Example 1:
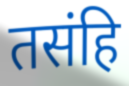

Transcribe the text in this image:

तसंहि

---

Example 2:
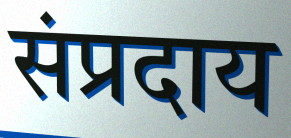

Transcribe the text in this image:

संप्रदाय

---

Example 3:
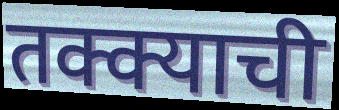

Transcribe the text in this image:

तक्क्याची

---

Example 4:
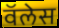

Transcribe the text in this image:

वॅलेस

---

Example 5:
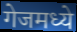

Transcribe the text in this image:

गेजमध्ये